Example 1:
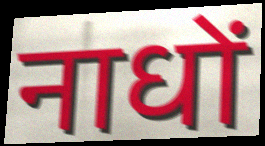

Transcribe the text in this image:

नाधों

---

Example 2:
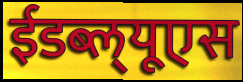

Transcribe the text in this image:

ईडब्ल्यूएस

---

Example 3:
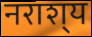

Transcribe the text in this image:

नराश्य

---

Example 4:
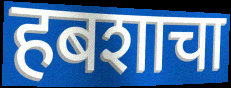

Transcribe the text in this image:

हबशाचा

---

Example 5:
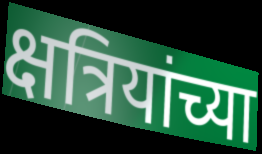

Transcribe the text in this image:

क्षत्रियांच्या